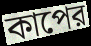
কাপের